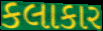
કલાકાર